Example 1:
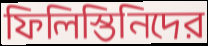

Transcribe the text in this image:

ফিলিস্তিনিদের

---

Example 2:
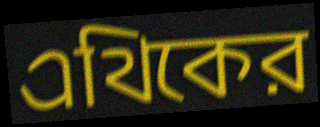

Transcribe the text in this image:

এথিকের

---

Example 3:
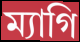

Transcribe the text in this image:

ম্যাগি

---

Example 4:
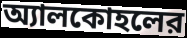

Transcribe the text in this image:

অ্যালকোহলের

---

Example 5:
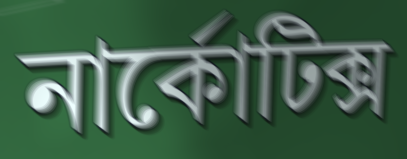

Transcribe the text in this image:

নার্কোটিক্স